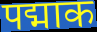
पद्माक